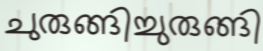
ചുരുങ്ങിച്ചുരുങ്ങി